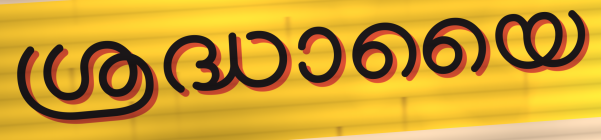
ശ്രദ്ധായൈ